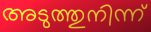
അടുത്തുനിന്ന്